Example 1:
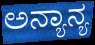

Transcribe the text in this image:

ಅನ್ಯಾನ್ಯ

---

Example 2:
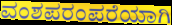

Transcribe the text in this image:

ವಂಶಪರಂಪರೆಯಾಗಿ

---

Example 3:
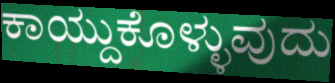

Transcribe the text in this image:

ಕಾಯ್ದುಕೊಳ್ಳುವುದು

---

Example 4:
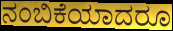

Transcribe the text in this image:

ನಂಬಿಕೆಯಾದರೂ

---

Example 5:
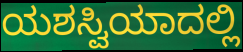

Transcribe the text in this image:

ಯಶಸ್ವಿಯಾದಲ್ಲಿ